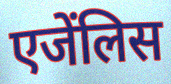
एजेंलिस